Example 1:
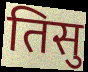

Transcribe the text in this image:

तिसु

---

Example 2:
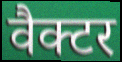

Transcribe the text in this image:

वैक्टर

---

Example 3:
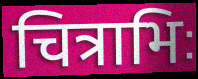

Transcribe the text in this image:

चित्राभिः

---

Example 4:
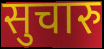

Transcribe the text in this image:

सुचारु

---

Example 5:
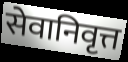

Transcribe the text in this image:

सेवानिवृत्त